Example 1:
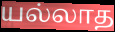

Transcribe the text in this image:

யல்லாத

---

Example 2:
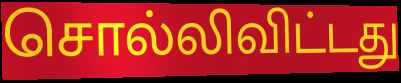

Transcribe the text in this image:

சொல்லிவிட்டது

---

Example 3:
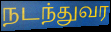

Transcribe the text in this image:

நடந்துவர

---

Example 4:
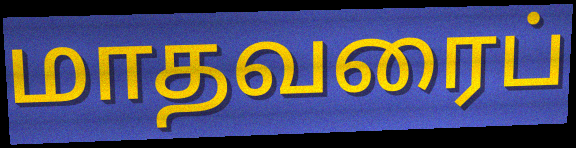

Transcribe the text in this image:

மாதவரைப்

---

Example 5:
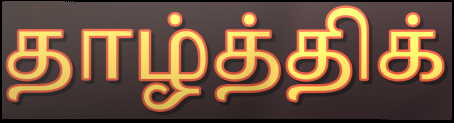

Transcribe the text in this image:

தாழ்த்திக்